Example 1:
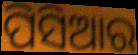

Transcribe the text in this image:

ପିସିଆର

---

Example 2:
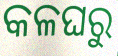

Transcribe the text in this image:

କଳଘରୁ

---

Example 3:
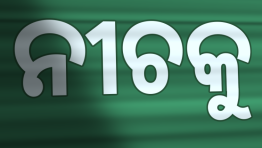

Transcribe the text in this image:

ନୀଚକୁ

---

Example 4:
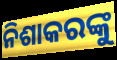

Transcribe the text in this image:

ନିଶାକରଙ୍କୁ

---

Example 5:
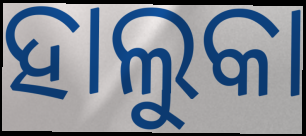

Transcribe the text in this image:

ହାଲୁକା